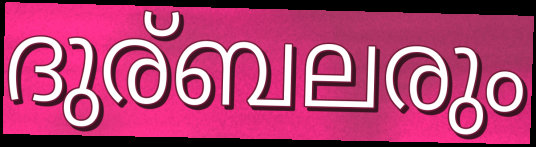
ദുര്ബലരും